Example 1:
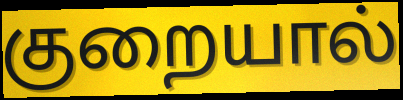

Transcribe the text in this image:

குறையால்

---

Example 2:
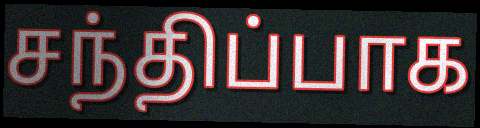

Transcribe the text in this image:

சந்திப்பாக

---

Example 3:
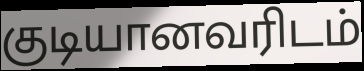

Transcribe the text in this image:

குடியானவரிடம்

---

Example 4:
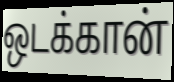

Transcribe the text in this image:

ஒடக்கான்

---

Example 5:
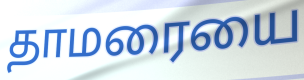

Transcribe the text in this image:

தாமரையை